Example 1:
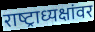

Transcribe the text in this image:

राष्ट्राध्यक्षांवर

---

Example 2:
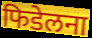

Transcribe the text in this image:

फिडेलना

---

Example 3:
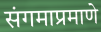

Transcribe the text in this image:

संगमाप्रमाणे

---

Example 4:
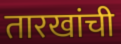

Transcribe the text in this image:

तारखांची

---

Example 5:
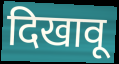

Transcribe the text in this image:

दिखावू